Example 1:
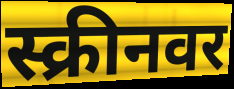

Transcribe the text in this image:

स्क्रीनवर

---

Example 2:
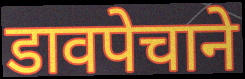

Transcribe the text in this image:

डावपेचाने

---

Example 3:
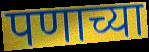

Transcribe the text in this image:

पणाच्या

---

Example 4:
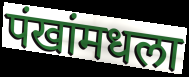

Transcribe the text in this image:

पंखांमधला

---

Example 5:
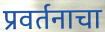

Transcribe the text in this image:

प्रवर्तनाचा